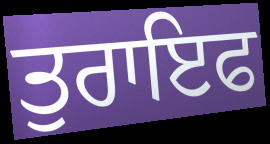
ਤੁਰਾਇਫ